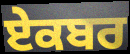
ਏਕਬਰ